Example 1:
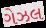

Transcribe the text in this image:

ગેઝલ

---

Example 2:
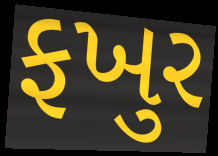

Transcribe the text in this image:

ફખુર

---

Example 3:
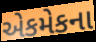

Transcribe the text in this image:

એકમેકના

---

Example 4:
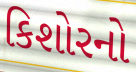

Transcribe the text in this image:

કિશોરનો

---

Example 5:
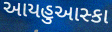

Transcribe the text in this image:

આયહુઆસ્કા